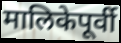
मालिकेपूर्वी